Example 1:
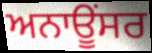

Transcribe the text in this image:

ਅਨਾਊਂਸਰ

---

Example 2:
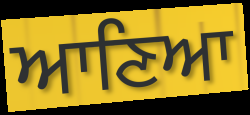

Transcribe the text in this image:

ਆਣਿਆ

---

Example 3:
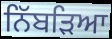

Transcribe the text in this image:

ਨਿੱਬੜਿਆ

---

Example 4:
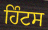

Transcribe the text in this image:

ਹਿੰਟਸ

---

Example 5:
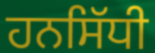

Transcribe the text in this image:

ਹਨਸਿੱਧੀ